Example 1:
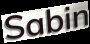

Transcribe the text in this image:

Sabin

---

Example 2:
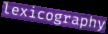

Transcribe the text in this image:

lexicography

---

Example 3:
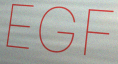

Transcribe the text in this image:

EGF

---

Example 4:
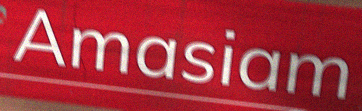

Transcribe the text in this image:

Amasiam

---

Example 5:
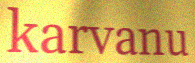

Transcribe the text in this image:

karvanu